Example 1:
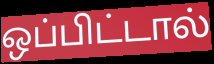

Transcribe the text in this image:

ஒப்பிட்டால்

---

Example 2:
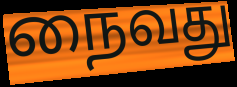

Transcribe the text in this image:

நைவது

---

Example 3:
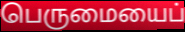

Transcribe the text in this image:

பெருமையைப்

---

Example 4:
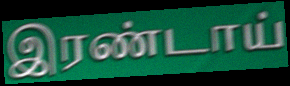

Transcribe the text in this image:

இரண்டாய்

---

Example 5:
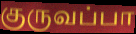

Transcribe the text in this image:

குருவப்பா